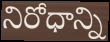
నిరోధాన్ని